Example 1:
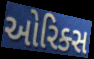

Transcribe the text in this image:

ઓરિક્સ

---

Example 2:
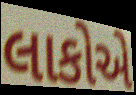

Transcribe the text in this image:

લાકોએ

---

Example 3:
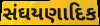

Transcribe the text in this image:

સંઘયણાદિક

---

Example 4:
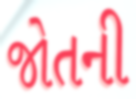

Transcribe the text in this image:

જોતની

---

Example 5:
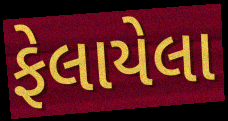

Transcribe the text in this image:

ફેલાયેલા